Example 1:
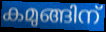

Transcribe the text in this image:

കമുങ്ങിന്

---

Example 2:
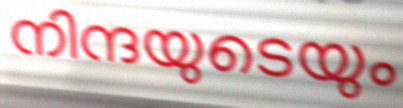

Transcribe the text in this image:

നിന്ദയുടെയും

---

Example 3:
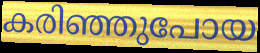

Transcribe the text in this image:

കരിഞ്ഞുപോയ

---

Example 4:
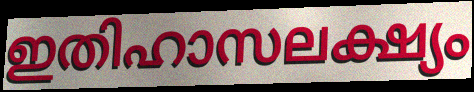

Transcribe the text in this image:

ഇതിഹാസലക്ഷ്യം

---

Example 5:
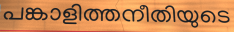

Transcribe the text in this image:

പങ്കാളിത്തനീതിയുടെ